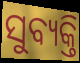
ସୁବ୍ୟକ୍ତି